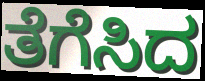
ತೆಗೆಸಿದ